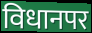
विधानपर